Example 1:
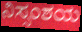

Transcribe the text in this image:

ನಿಸ್ಸಂಶಯ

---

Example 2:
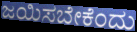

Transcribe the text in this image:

ಜಯಿಸಬೇಕೆಂದು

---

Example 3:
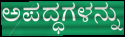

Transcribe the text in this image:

ಅಪದ್ಧಗಳನ್ನು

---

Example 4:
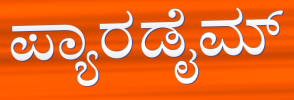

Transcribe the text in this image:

ಪ್ಯಾರಡೈಮ್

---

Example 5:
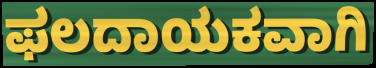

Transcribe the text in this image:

ಫಲದಾಯಕವಾಗಿ